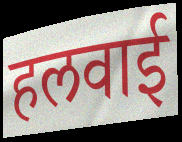
हलवाई